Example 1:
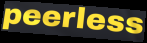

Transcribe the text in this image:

peerless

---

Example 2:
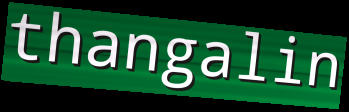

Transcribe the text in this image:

thangalin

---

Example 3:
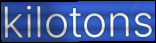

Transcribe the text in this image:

kilotons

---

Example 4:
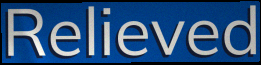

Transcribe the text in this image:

Relieved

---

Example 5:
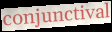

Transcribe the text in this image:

conjunctival